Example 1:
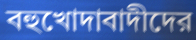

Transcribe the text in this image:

বহুখোদাবাদীদের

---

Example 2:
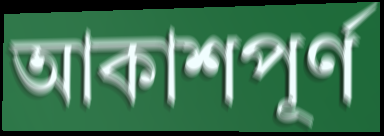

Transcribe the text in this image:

আকাশপূর্ণ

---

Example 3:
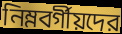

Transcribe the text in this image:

নিম্নবর্গীয়দের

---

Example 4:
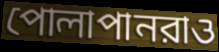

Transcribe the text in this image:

পোলাপানরাও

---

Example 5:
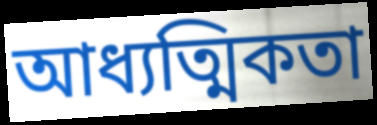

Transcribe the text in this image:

আধ্যত্মিকতা